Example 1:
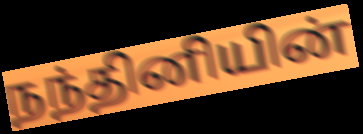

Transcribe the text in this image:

நந்தினியின்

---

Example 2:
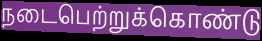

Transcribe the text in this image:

நடைபெற்றுக்கொண்டு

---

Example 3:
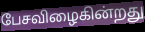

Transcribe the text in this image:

பேசவிழைகின்றது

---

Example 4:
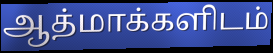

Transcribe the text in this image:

ஆத்மாக்களிடம்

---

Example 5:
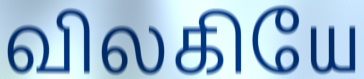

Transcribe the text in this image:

விலகியே